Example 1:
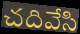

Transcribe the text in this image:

చదివేసి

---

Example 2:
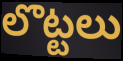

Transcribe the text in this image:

లొట్టలు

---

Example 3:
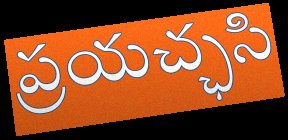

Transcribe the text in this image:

ప్రయచ్ఛసి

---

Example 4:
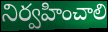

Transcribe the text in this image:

నిర్వహించాలి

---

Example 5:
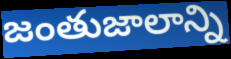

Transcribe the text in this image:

జంతుజాలాన్ని